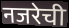
नजरेची